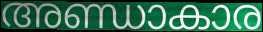
അണ്ഡാകാര